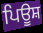
ਪਿਊਸ਼